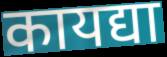
कायद्या